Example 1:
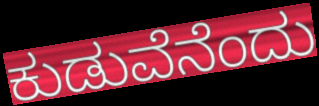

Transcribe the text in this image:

ಕುಡುವೆನೆಂದು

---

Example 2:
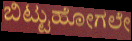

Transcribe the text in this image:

ಬಿಟ್ಟುಹೋಗಲೇ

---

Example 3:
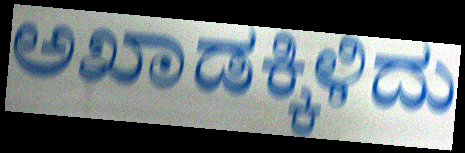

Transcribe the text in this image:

ಅಖಾಡಕ್ಕಿಳಿದು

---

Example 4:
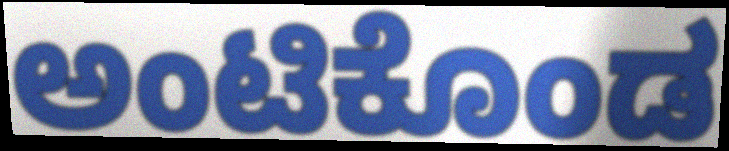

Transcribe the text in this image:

ಅಂಟಿಕೊಂಡ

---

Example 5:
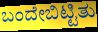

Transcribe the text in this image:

ಬಂದೇಬಿಟ್ಟಿತು